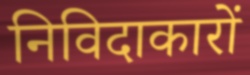
निविदाकारों